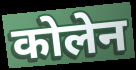
कोलेन